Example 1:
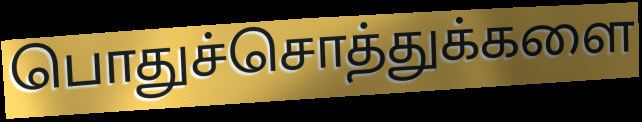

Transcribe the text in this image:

பொதுச்சொத்துக்களை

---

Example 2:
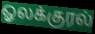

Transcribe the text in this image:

ஓலக்குரல்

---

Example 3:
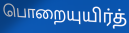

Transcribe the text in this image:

பொறையுயிர்த்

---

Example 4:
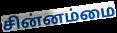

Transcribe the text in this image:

சின்னம்மை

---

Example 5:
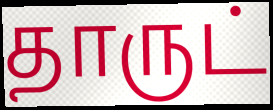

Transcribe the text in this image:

தாருட்